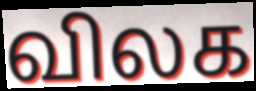
விலக